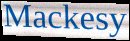
Mackesy